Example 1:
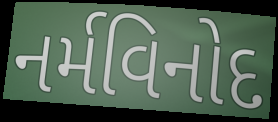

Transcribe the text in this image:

નર્મવિનોદ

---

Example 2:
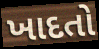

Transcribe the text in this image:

ખાદતો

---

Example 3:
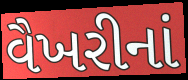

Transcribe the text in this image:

વૈખરીનાં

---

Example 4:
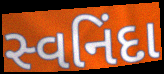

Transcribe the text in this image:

સ્વનિંદા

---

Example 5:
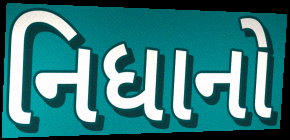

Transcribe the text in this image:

નિધાનો